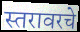
स्तरावरचे